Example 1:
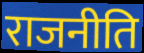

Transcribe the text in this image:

राजनीति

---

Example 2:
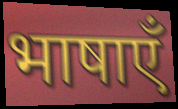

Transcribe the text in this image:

भाषाएँ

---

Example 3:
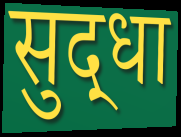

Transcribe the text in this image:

सुद्धा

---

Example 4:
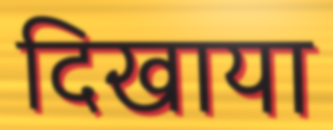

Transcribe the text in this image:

दिखाया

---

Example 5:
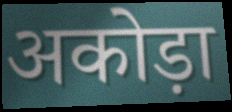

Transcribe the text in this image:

अकोड़ा